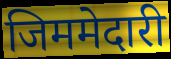
जिममेदारी